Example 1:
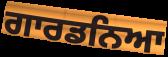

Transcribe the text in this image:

ਗਾਰਡਨਿਆ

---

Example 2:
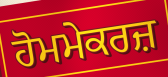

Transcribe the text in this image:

ਹੋਮਮੇਕਰਜ਼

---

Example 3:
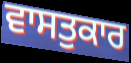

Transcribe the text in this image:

ਵਾਸਤੁਕਾਰ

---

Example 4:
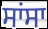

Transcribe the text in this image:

ਸਾਂਸਾ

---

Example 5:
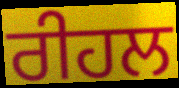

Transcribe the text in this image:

ਰੀਹਲ